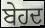
ਬੇਹਦ